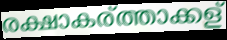
രക്ഷാകര്ത്താക്കള്